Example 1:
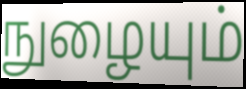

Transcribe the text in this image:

நுழையும்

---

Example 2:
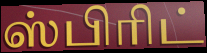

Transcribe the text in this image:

ஸ்பிரிட்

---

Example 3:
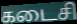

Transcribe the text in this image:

கடைசி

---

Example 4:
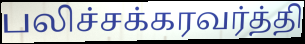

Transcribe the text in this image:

பலிச்சக்கரவர்த்தி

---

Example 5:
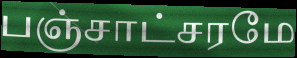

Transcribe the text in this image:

பஞ்சாட்சரமே